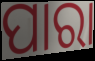
ପାରା